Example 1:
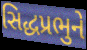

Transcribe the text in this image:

સિદ્ધપ્રભુને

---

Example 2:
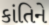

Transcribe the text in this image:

કાંતિને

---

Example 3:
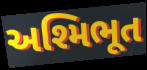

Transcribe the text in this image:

અશ્મિભૂત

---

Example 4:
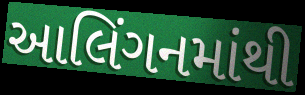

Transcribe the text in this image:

આલિંગનમાંથી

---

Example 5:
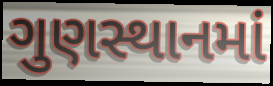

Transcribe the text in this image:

ગુણસ્થાનમાં